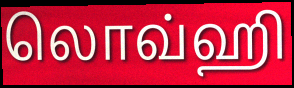
லொவ்ஹி